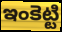
ఇంకెట్టి